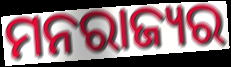
ମନରାଜ୍ୟର